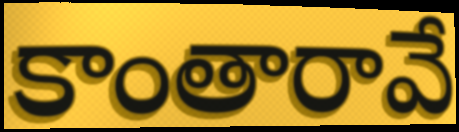
కాంతారావే